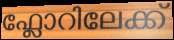
ഫ്ലോറിലേക്ക്